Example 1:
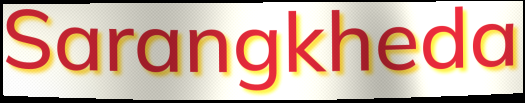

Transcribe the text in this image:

Sarangkheda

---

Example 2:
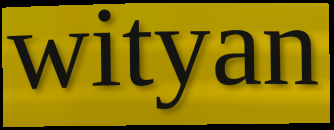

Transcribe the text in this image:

wityan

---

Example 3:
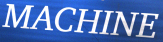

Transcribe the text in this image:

MACHINE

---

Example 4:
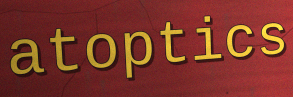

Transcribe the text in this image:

atoptics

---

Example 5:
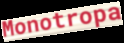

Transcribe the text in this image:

Monotropa